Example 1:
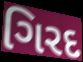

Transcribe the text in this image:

ગિરદ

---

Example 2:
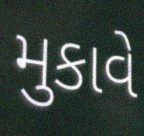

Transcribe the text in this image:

મુકાવે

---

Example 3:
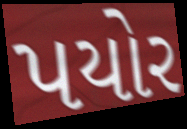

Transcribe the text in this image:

પયોર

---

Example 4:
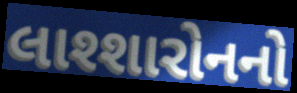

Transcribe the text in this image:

લાશ્શારોનનો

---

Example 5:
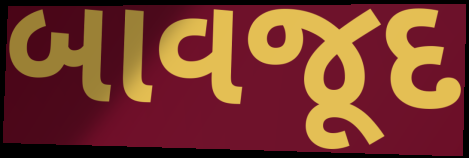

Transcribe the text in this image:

બાવજૂદ